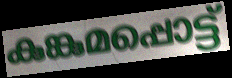
കുങ്കുമപ്പൊട്ട്